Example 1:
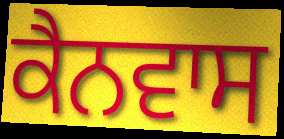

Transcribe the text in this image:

ਕੈਨਵਾਸ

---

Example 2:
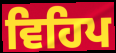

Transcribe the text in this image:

ਵਿਹਿਪ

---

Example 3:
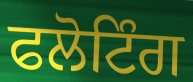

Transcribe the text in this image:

ਫਲੋਟਿੰਗ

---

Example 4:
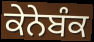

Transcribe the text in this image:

ਕੇਨੇਬੰਕ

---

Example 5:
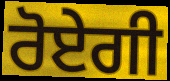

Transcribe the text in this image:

ਰੋਏਗੀ